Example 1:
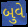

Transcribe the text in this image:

બુવે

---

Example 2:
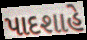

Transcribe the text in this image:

પાદશાહે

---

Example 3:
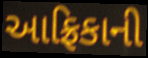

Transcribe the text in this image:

આફ્રિકાની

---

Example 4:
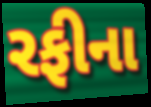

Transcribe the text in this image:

રફીના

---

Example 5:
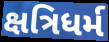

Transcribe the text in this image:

ક્ષત્રિધર્મ